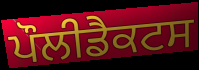
ਪੌਲੀਡੈਕਟਸ